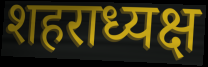
शहराध्यक्ष